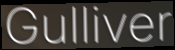
Gulliver